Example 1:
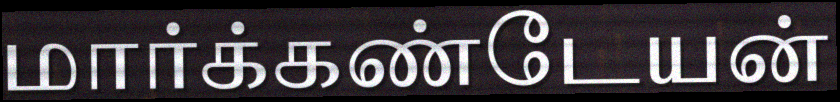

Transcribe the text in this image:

மார்க்கண்டேயன்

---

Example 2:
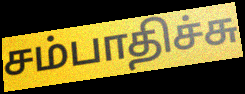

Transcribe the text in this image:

சம்பாதிச்சு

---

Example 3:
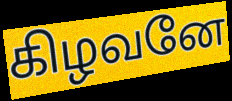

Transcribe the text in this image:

கிழவனே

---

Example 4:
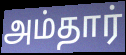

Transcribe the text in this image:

அம்தார்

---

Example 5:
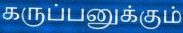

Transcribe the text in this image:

கருப்பனுக்கும்